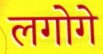
लगोगे